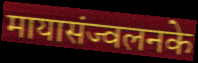
मायासंज्वलनके